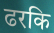
ढरकि